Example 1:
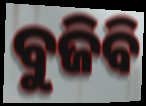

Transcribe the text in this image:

ବୁଜିବି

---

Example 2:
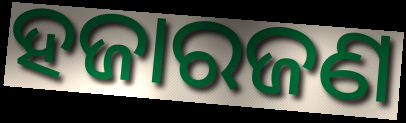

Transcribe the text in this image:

ହଜାରଜଣ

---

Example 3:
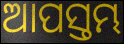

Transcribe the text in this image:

ଆପସ୍ତମ୍ଭ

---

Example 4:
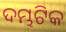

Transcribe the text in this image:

ଦମ୍ଭଟିକ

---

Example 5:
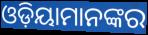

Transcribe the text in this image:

ଓଡ଼ିୟାମାନଙ୍କର